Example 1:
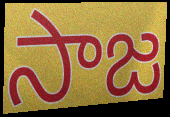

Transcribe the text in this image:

సాజ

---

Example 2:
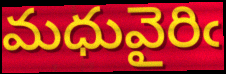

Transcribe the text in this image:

మధువైరిఁ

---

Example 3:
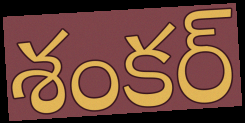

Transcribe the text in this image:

శంకర్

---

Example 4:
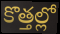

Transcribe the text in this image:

కొత్తల్లో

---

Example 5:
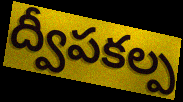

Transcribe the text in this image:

ద్వీపకల్ప